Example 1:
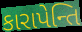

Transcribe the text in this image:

કારાપેન્તિ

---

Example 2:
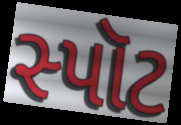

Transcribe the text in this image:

સ્પૉટ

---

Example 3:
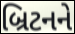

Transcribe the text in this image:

બ્રિટનને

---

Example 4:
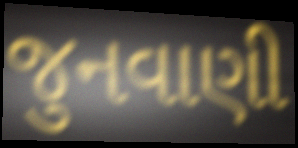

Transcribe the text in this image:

જુનવાણી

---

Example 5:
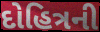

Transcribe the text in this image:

દોહિત્રની